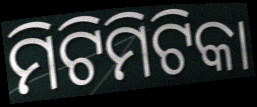
ମିଟିମିଟିକା